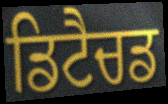
ਡਿਟੈਚਡ